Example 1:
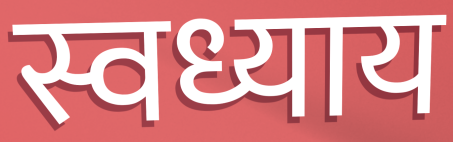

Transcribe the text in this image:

स्वध्याय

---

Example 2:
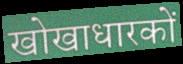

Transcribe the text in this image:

खोखाधारकों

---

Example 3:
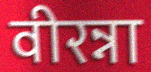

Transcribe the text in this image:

वीरन्ना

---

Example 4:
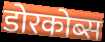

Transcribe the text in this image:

डोरकोब्स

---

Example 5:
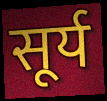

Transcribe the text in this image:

सूर्य